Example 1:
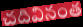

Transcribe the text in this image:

చదివినంత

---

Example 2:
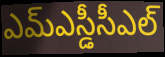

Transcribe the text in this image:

ఎమ్ఎస్డీసీఎల్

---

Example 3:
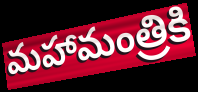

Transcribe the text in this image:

మహామంత్రికి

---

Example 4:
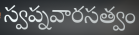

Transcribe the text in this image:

స్వప్నవారసత్వం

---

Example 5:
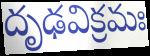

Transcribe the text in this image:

దృఢవిక్రమః